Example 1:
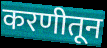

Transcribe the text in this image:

करणीतून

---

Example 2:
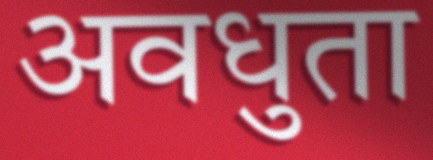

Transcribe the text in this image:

अवधुता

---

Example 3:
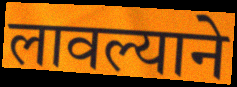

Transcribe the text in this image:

लावल्याने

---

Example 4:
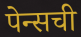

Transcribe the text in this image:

पेन्सची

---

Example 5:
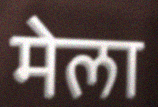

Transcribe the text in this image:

मेला